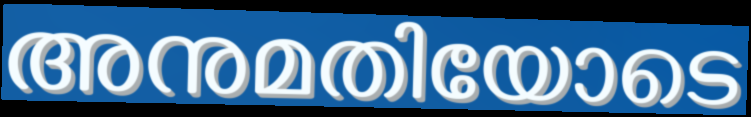
അനുമതിയോടെ